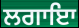
ਲਗਾਇਾ